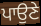
ਪਾਉਣੇ